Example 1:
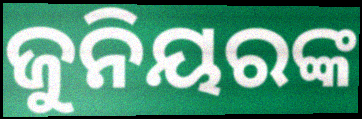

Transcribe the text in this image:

ଜୁନିୟରଙ୍କ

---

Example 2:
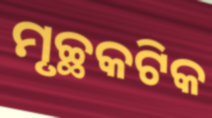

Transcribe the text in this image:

ମୃଚ୍ଛକଟିକ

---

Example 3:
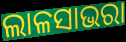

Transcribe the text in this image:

ଲାଳସାଭରା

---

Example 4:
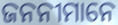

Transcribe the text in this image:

ଜନନୀମାନେ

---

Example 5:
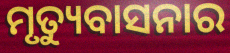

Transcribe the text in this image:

ମୃତ୍ୟୁବାସନାର